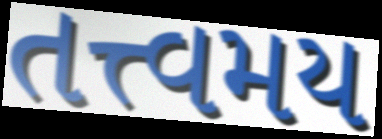
તત્ત્વમય